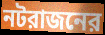
নটরাজনের